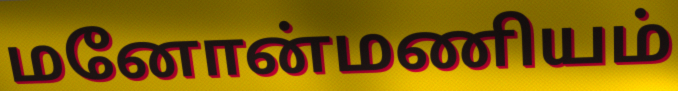
மனோன்மணியம்